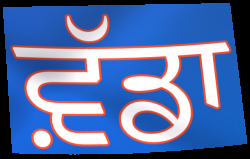
ਵ਼ੱਡਾ